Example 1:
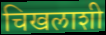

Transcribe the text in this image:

चिखलाशी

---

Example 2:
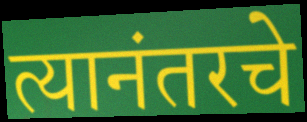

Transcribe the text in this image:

त्यानंतरचे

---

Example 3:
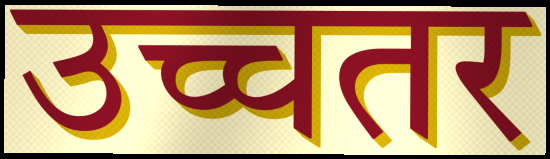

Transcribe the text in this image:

उच्चतर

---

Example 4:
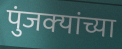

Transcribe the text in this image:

पुंजक्यांच्या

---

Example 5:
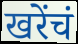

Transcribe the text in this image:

खरेंचं